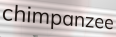
chimpanzee